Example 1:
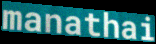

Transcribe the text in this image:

manathai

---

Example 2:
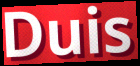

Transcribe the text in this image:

Duis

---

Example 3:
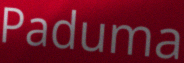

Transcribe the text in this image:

Paduma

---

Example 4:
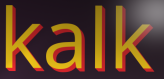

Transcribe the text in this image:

kalk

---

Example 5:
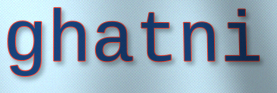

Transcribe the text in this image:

ghatni